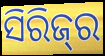
ସିରିଜ୍‌ର